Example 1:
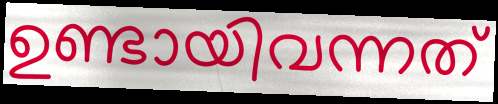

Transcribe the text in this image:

ഉണ്ടായിവന്നത്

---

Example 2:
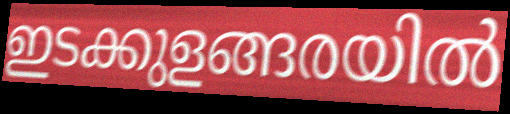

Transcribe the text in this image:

ഇടക്കുളങ്ങരയിൽ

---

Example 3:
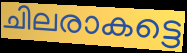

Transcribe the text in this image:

ചിലരാകട്ടെ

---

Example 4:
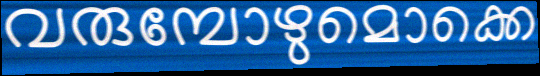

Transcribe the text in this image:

വരുമ്പോഴുമൊക്കെ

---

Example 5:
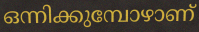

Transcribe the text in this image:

ഒന്നിക്കുമ്പോഴാണ്